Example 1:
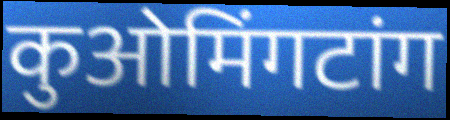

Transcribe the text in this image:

कुओमिंगटांग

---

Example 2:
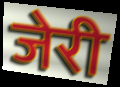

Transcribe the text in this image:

जेरी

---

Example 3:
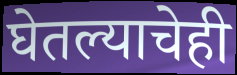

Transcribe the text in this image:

घेतल्याचेही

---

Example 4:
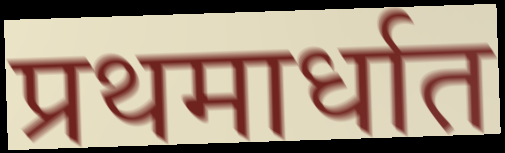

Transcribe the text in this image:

प्रथमार्धात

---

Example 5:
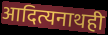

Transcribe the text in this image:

आदित्यनाथही